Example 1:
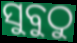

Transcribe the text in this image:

ସୁବୁଠୁ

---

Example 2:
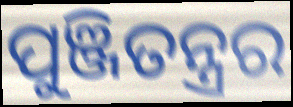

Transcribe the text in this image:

ପୁଞ୍ଜିତନ୍ତ୍ରର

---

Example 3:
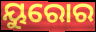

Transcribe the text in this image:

ୟୁରୋର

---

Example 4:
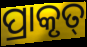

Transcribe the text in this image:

ପ୍ରାକୃତ୍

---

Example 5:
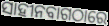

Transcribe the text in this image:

ସାହୀନବାଗଠାରେ